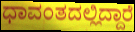
ಧಾವಂತದಲ್ಲಿದ್ದಾರೆ